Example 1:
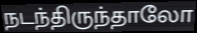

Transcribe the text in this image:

நடந்திருந்தாலோ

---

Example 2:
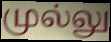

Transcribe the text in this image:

முல்லு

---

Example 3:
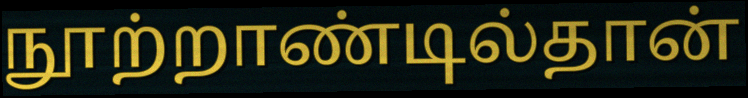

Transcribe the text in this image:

நூற்றாண்டில்தான்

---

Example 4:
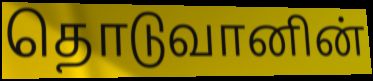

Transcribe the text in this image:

தொடுவானின்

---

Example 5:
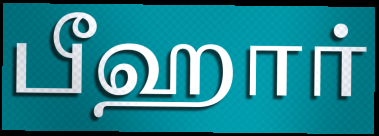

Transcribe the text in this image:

பீஹார்